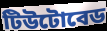
টিউটোবেড